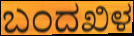
ಬಂದಖಿಳ